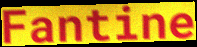
Fantine